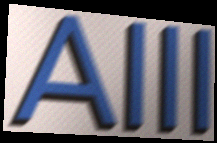
AIII